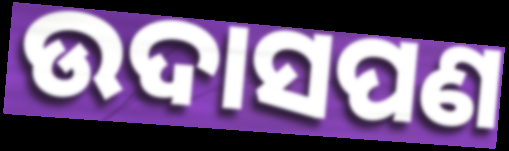
ଉଦାସପଣ